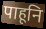
पाहूनि